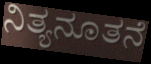
ನಿತ್ಯನೂತನೆ